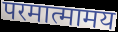
परमात्मामय